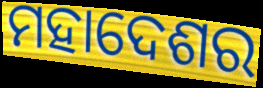
ମହାଦେଶର